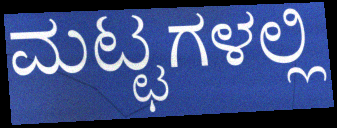
ಮಟ್ಟಗಳಲ್ಲಿ